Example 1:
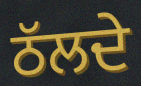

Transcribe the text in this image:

ਠੱਲਦੇ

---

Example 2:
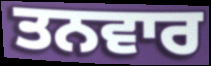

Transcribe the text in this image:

ਤਨਵਾਰ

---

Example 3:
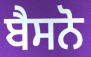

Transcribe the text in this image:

ਬੈਸਨੋ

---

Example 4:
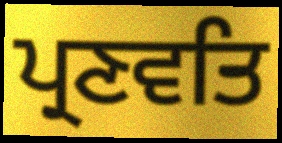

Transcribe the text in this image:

ਪ੍ਰਣਵਤਿ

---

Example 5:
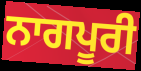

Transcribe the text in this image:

ਨਾਗਪੂਰੀ